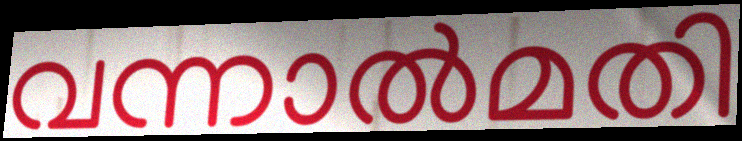
വന്നാൽമതി